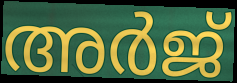
അർജ്